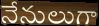
నేనులుగా